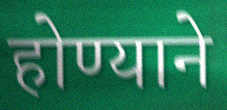
होण्याने